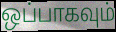
ஒப்பாகவும்